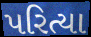
પરિત્યા